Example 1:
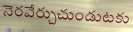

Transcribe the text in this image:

నెరవేర్చుచుండుటకు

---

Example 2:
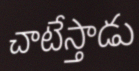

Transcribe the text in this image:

చాటేస్తాడు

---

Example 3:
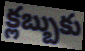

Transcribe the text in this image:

క్లబ్బుకు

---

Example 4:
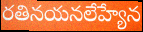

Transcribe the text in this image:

రతినయనలేహ్యేన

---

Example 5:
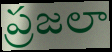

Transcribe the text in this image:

ప్రజలా